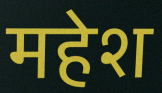
महेश